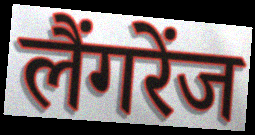
लैंगरेंज